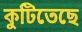
কুটিতেছে